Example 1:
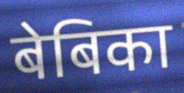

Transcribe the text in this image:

बेबिका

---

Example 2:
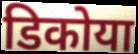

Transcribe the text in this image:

डिकोया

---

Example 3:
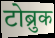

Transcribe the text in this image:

टोब्रुक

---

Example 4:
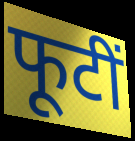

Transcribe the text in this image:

फूटीं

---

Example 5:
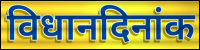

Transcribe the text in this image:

विधानदिनांक